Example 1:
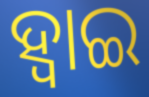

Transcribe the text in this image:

ହ୍ଵାଇ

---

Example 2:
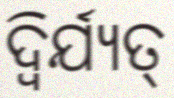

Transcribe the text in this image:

ଦ୍ୱିର୍ଯ୍ୟତ୍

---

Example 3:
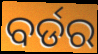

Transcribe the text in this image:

ବର୍ଡର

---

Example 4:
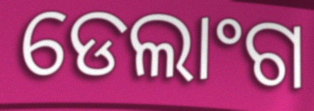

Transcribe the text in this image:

ଡେଲାଂଗ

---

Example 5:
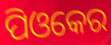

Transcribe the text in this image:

ପିଓକେର